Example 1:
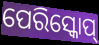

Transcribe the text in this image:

ପେରିସ୍କୋପ୍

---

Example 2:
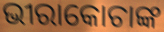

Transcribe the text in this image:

ଭୀରାକୋଚାଙ୍କ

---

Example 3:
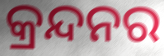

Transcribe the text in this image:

କ୍ରନ୍ଦନର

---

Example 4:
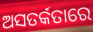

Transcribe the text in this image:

ଅସତର୍କତାରେ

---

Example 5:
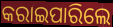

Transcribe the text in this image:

କରାଇପାରିଲେ